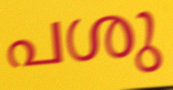
പശു